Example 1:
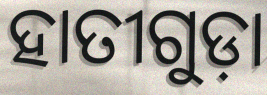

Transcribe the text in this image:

ହାତୀଗୁଡ଼ା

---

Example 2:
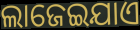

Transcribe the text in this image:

ଲାଜେଇଯାଏ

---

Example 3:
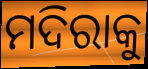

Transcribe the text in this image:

ମଦିରାକୁ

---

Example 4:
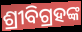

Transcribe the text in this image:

ଶ୍ରୀବିଗ୍ରହଙ୍କ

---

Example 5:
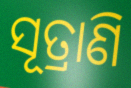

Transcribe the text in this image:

ସୂତ୍ରାଣି